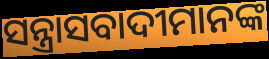
ସନ୍ତ୍ରାସବାଦୀମାନଙ୍କ